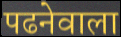
पढनेवाला